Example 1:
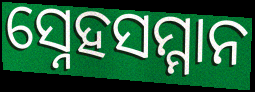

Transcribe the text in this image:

ସ୍ନେହସମ୍ମାନ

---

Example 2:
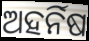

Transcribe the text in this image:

ଅହର୍ନିଷ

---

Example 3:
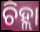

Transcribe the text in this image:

ଚିହ୍ଲା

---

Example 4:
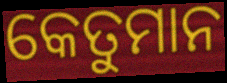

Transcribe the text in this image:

କେତୁମାନ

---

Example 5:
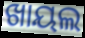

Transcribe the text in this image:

ଖାୟଲ